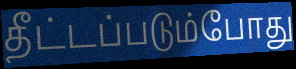
தீட்டப்படும்போது